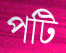
পটি